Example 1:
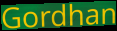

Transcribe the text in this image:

Gordhan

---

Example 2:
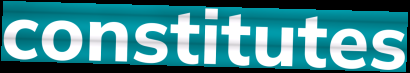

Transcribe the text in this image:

constitutes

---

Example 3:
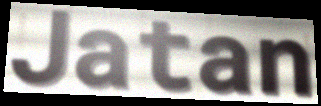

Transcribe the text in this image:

Jatan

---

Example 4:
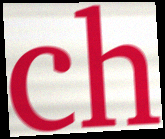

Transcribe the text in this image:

ch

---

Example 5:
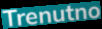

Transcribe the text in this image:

Trenutno